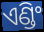
ଏଣ୍ଡିଂ